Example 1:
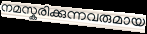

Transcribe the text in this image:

നമസ്കരിക്കുന്നവരുമായ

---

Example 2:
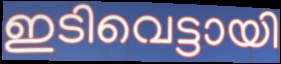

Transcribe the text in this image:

ഇടിവെട്ടായി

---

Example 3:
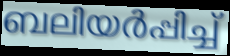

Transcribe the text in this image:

ബലിയർപ്പിച്ച്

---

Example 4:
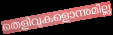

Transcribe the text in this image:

തെളിവുകളൊന്നുമില്ല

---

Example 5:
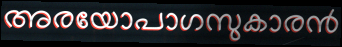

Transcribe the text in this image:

അരയോപാഗസുകാരൻ